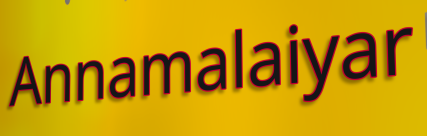
Annamalaiyar